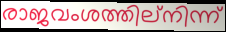
രാജവംശത്തില്നിന്ന്